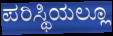
ಪರಿಸ್ಥಿಯಲ್ಲೂ